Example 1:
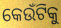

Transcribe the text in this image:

କେଉଁଟିକୁ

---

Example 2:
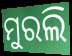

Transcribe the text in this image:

ମୁରଲି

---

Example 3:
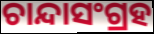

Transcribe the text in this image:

ଚାନ୍ଦାସଂଗ୍ରହ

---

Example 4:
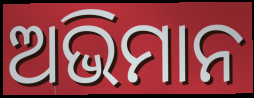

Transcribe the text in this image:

ଅଭିମାନ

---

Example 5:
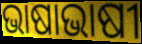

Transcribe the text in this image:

ଭାଷାଭାଷୀ